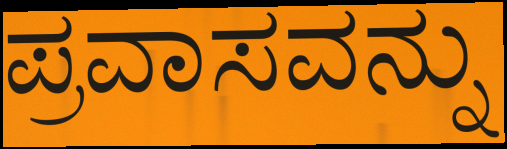
ಪ್ರವಾಸವನ್ನು